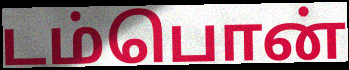
டம்பொன்